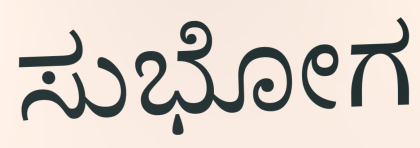
ಸುಭೋಗ